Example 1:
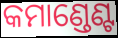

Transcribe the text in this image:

କମାଣ୍ଡେଣ୍ଟ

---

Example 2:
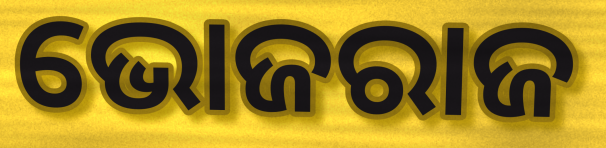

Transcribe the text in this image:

ଭୋଜରାଜ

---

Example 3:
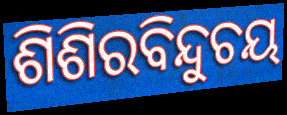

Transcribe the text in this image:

ଶିଶିରବିନ୍ଦୁଚୟ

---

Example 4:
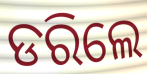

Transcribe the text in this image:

ଡରିଲେ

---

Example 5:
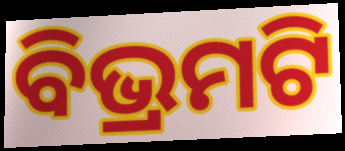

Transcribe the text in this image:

ବିଭ୍ରମଟି